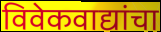
विवेकवाद्यांचा